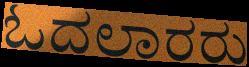
ಓದಲಾರರು